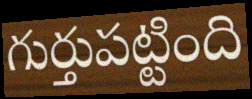
గుర్తుపట్టింది